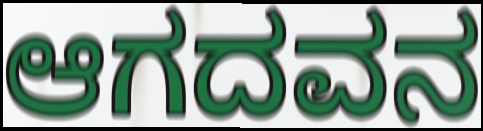
ಆಗದವನ